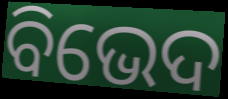
ବିଭେଦ